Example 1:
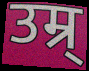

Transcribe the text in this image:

उम्र्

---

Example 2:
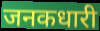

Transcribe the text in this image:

जनकधारी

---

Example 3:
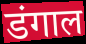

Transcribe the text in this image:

डंगाल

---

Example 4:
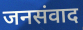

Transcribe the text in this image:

जनसंवाद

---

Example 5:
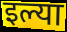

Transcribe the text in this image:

इल्या